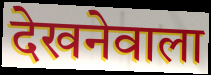
देखनेवाला